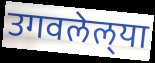
उगवलेल्या